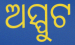
ଅସ୍ପୁଟ